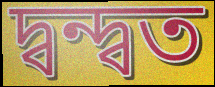
দ্বন্দ্বত